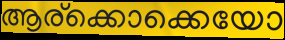
ആര്ക്കൊക്കെയോ